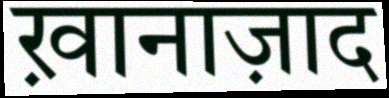
ख़ानाज़ाद